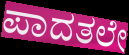
ಪಾದತಲೇ